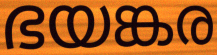
ഭയങ്കര